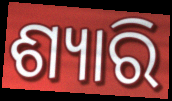
ଶ୍ୟାରି